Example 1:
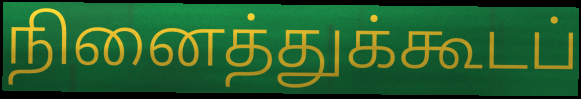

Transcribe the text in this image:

நினைத்துக்கூடப்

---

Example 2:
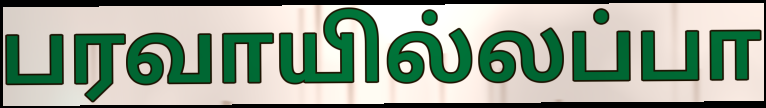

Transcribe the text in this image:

பரவாயில்லப்பா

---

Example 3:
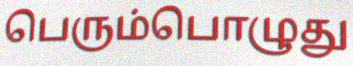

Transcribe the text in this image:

பெரும்பொழுது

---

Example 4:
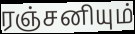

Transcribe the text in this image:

ரஞ்சனியும்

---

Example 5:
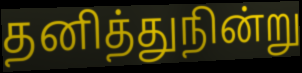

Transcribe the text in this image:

தனித்துநின்று